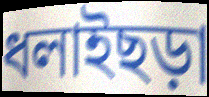
ধলাইছড়া